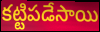
కట్టిపడేసాయి